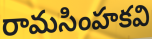
రామసింహకవి